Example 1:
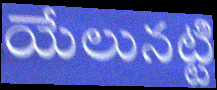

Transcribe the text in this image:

యేలునట్టి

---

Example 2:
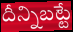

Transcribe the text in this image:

దీన్నిబట్టే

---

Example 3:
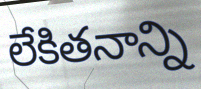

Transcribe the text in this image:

లేకితనాన్ని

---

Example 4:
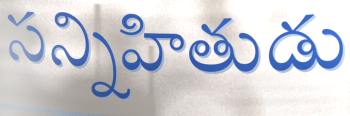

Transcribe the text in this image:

సన్నిహితుడు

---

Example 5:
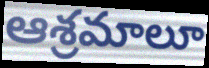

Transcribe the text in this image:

ఆశ్రమాలూ